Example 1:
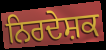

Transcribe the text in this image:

ਨਿਰਦੇਸ਼ਕ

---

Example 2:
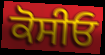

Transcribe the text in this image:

ਕੋਸੀਓ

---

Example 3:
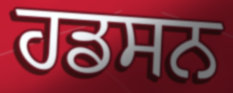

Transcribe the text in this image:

ਹਡਸਨ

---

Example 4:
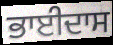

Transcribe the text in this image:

ਭਾਈਦਾਸ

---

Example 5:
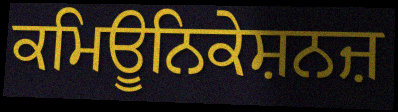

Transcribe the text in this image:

ਕਮਿਊਨਿਕੇਸ਼ਨਜ਼